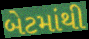
બેટમાંથી